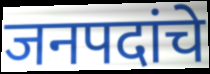
जनपदांचे